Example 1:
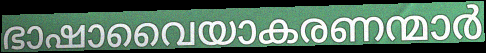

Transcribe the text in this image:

ഭാഷാവൈയാകരണന്മാർ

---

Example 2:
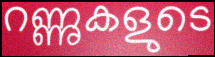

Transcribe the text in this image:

റണ്ണുകളുടെ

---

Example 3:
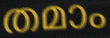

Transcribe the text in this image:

തമാം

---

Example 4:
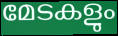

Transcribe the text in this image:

മേടകളും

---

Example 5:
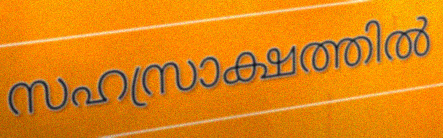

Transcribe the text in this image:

സഹസ്രാക്ഷത്തിൽ